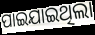
ପାଇଯାଇଥିଲା